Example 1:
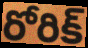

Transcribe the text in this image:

రోరిక్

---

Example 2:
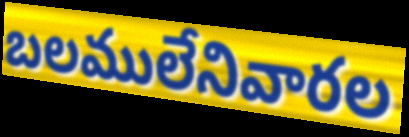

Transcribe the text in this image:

బలములేనివారల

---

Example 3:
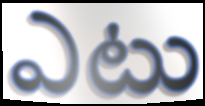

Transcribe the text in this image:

ఎటు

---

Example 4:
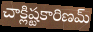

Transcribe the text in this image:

చాక్లిష్టకారిణమ్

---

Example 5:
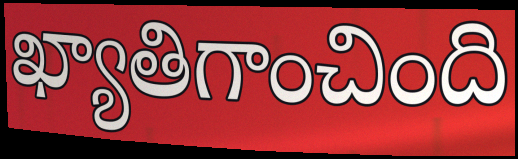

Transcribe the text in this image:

ఖ్యాతిగాంచింది